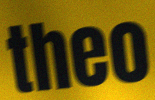
theo